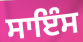
ਸਾਇੰਸ